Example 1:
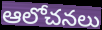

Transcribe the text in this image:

ఆలోచనలు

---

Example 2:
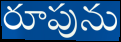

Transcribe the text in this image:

రూపును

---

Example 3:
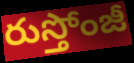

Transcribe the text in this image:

రుస్తోంజీ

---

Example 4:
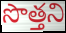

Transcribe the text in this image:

సొత్తని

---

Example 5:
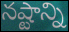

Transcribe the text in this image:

నష్టాన్ని